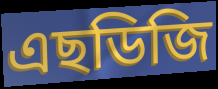
এছডিজি